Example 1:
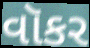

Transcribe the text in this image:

વૉકર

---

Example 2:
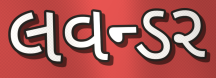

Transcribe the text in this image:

લવન્ડર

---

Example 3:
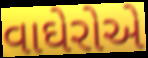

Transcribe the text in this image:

વાઘેરોએ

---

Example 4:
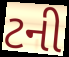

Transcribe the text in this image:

ટની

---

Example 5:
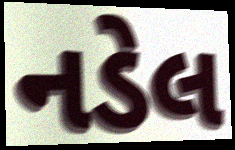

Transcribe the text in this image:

નડેલ